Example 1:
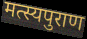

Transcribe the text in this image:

मत्स्यपुराण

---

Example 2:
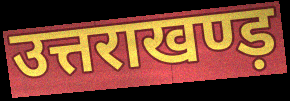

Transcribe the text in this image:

उत्तराखण्ड़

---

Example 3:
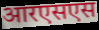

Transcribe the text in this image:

आरएसएस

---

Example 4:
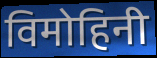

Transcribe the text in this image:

विमोहिनी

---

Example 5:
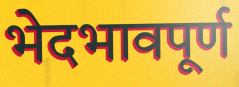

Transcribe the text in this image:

भेदभावपूर्ण